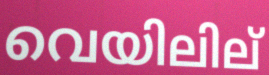
വെയിലില്